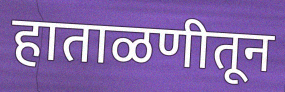
हाताळणीतून